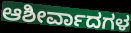
ಆಶೀರ್ವಾದಗಳ